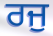
ਰਜੁ